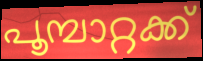
പൂമ്പാറ്റക്ക്